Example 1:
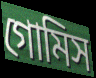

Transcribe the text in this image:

গোমিস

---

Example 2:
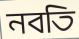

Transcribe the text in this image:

নবতি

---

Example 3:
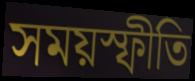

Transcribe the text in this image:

সময়স্ফীতি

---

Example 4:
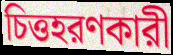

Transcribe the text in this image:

চিত্তহরণকারী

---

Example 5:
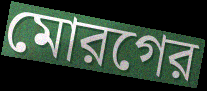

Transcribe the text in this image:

মোরগের